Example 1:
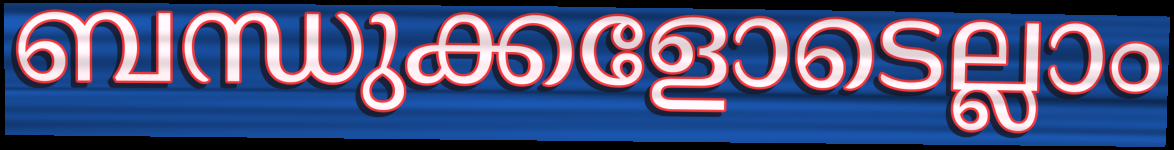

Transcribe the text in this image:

ബന്ധുക്കളോടെല്ലാം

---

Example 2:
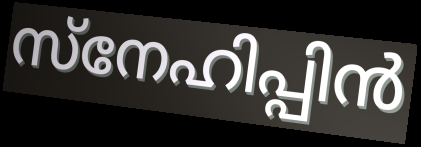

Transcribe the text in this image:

സ്നേഹിപ്പിൻ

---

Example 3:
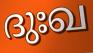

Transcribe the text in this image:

ദുഃഖ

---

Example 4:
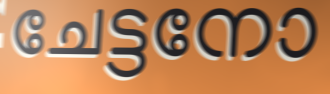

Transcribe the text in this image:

ചേട്ടനോ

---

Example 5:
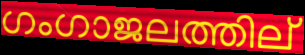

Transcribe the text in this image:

ഗംഗാജലത്തില്